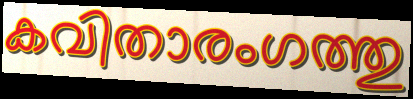
കവിതാരംഗത്തു